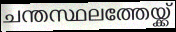
ചന്തസ്ഥലത്തേയ്ക്ക്